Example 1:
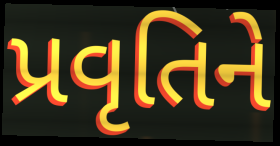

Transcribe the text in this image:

પ્રવૃતિને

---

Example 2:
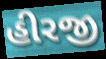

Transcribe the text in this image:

હીરજી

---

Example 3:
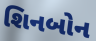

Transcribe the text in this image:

શિનબોન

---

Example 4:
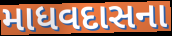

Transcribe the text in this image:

માધવદાસના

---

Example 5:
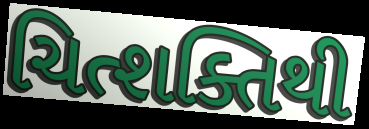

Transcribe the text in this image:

ચિત્શક્તિથી